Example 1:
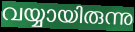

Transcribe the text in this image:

വയ്യായിരുന്നു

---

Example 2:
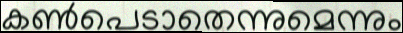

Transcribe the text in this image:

കൺപെടാതെന്നുമെന്നും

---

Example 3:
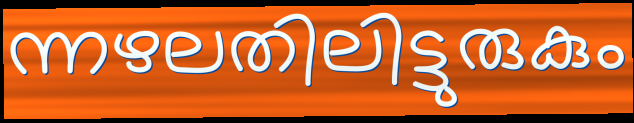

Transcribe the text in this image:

ന്നഴലതിലിട്ടുരുകും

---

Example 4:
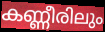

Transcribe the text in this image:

കണ്ണീരിലും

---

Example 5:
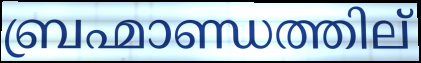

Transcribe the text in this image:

ബ്രഹ്മാണ്ഡത്തില്